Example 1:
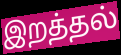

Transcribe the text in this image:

இறத்தல்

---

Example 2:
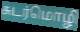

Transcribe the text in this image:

சுடர்மொழி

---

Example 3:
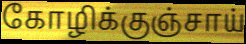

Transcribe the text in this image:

கோழிக்குஞ்சாய்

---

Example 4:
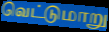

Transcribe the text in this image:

வெட்டுமாறு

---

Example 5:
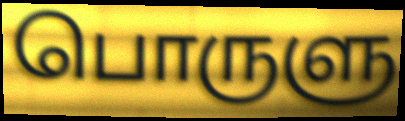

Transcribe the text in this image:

பொருளு